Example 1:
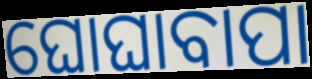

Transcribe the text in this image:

ଘୋଘାବାପା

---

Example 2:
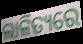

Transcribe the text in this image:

ଲାଳିତ୍ୟରେ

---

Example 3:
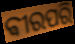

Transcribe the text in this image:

ଵୀରପରି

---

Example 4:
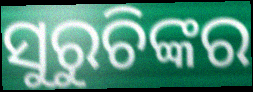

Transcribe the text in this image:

ସୁରୁଚିଙ୍କର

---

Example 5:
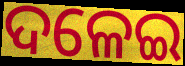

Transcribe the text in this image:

ଦଳେଇ